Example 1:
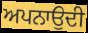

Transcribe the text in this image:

ਅਪਨਾਉਦੀ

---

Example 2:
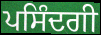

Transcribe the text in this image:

ਪਸਿੰਦਗੀ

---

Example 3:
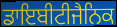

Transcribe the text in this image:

ਡਾਇਬੀਟੀਜੈਨਿਕ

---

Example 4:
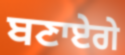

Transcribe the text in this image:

ਬਣਾਏਗੇ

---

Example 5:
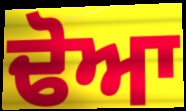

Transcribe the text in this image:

ਢੋਆ